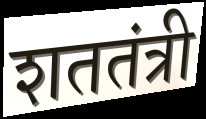
शततंत्री